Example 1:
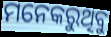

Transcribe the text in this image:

ମନେକରୁଥିବୁ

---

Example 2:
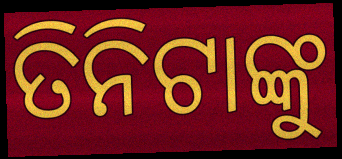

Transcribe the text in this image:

ତିନିଟାଙ୍କୁ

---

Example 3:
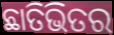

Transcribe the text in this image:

ଛାତିଭିତର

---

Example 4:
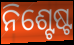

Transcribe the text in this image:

ନିଶ୍ଟେଷ୍ଟ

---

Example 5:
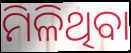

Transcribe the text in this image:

ମିଳିଥିବା